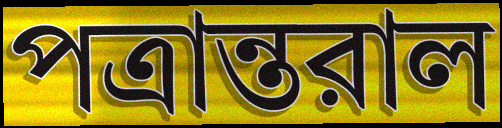
পত্রান্তরাল